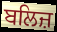
ਬਲਿਜ਼